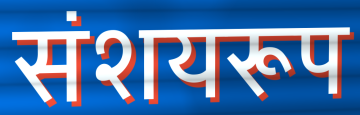
संशयरूप